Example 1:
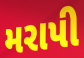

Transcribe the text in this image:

મરાપી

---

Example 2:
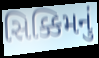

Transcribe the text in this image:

સિક્કિમનું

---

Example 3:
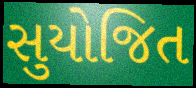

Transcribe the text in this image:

સુયોજિત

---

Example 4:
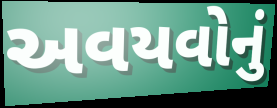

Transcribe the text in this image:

અવયવોનું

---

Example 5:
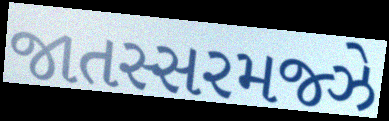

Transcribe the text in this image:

જાતસ્સરમજ્ઝે